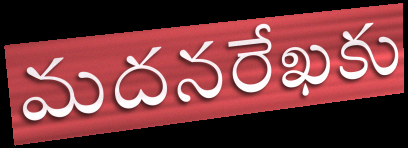
మదనరేఖకు